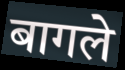
बागले